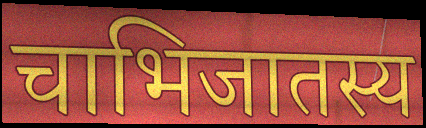
चाभिजातस्य